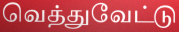
வெத்துவேட்டு